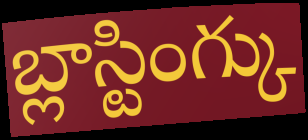
బ్లాస్టింగ్కు